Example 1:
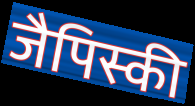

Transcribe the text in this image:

जैपिस्की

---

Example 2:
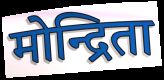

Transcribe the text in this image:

मोन्द्रिता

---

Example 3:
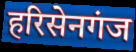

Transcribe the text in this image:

हरिसेनगंज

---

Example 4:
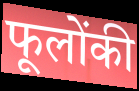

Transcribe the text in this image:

फूलोंकी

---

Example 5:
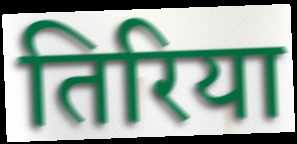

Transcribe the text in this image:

तिरिया